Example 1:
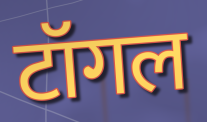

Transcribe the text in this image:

टॉगल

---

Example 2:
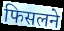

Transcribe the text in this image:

फिसलने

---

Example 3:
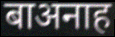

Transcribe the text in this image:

बाअनाह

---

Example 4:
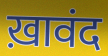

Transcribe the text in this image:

ख़ावंद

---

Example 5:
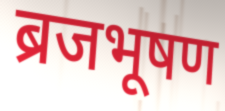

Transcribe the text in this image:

ब्रजभूषण